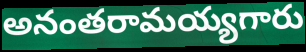
అనంతరామయ్యగారు